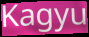
Kagyu